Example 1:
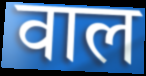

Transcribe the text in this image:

वाल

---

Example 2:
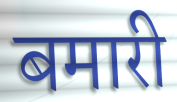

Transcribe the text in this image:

बमारी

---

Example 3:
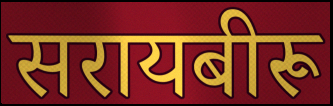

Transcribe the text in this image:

सरायबीरू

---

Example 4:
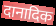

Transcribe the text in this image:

दानादिक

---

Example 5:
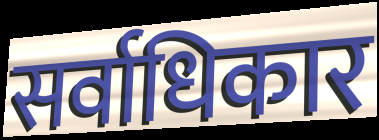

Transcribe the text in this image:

सर्वाधिकार